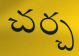
చర్చ